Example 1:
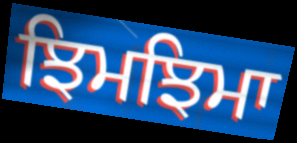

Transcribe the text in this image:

ਝਿਮਝਿਮਾ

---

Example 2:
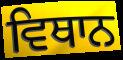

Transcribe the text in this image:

ਵਿਥਾਨ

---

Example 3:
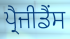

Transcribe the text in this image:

ਪ੍ਰੈਜੀਡੈਂਸ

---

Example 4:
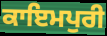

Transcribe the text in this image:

ਕਾਇਮਪੁਰੀ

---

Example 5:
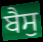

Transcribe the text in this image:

ਬੈਸੁ